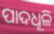
ପାଦଧୂଳି